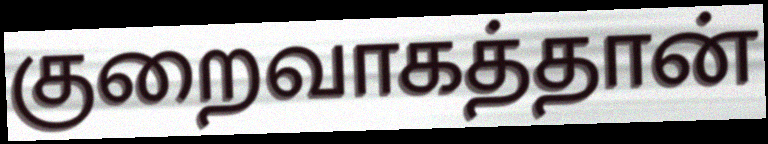
குறைவாகத்தான்